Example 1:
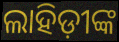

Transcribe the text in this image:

ଲାହିଡ଼ୀଙ୍କ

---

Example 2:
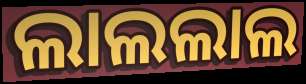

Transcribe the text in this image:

ଲାଲଲାଲ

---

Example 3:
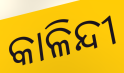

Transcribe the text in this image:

କାଳିନ୍ଦୀ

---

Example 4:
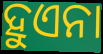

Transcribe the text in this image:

ହୁଏନା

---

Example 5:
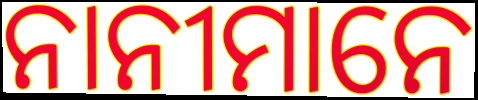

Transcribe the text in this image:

ନାନୀମାନେ